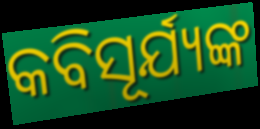
କବିସୂର୍ଯ୍ୟଙ୍କ